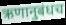
ऋणानुबंधच